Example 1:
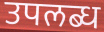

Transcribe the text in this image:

उपलब्ध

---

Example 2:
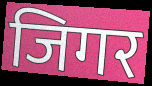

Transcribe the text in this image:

जिगर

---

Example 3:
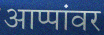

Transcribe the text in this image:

आप्पांवर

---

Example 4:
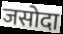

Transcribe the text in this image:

जसोदा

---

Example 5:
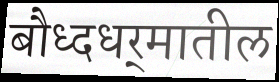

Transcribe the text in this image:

बौध्दधर्मातील